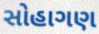
સોહાગણ